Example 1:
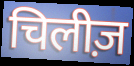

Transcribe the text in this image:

चिलीज़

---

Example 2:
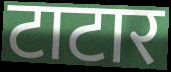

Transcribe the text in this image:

टाटार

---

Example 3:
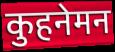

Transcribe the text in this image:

कुहनेमन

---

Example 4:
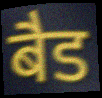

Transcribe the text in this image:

बैड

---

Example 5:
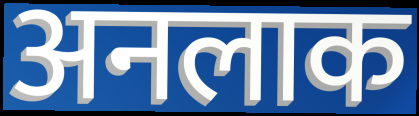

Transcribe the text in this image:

अनलाक